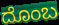
ದೊಂಬ